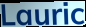
Lauric